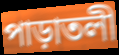
পাড়াতলী